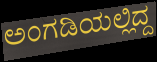
ಅಂಗಡಿಯಲ್ಲಿದ್ದ